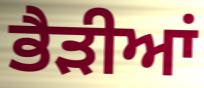
ਭੈੜੀਆਂ